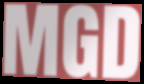
MGD